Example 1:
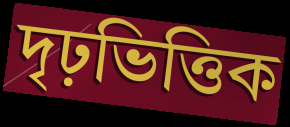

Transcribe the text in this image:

দৃঢ়ভিত্তিক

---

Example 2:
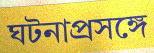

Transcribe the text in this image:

ঘটনাপ্রসঙ্গে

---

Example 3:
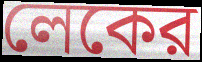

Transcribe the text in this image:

লেকের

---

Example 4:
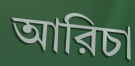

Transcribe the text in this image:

আরিচা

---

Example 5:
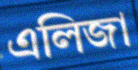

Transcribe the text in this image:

এলিজা